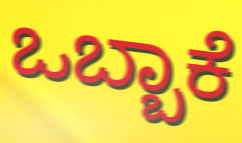
ಒಬ್ಬಾಕೆ